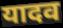
यादव